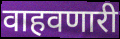
वाहवणारी